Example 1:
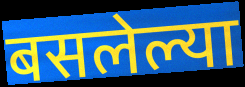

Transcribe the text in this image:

बसलेल्या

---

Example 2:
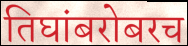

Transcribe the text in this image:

तिघांबरोबरच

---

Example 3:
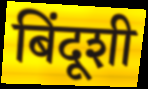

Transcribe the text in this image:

बिंदूशी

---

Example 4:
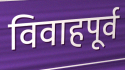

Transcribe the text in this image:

विवाहपूर्व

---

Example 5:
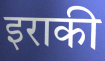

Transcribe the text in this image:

इराकी